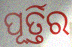
ପୂର୍ତ୍ତିର